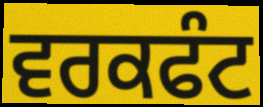
ਵਰਕਫੰਟ